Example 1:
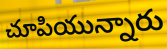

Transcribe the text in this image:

చూపియున్నారు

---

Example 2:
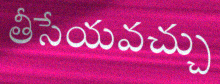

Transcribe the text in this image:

తీసేయవచ్చు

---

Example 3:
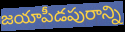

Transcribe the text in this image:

జయాపీడపురాన్ని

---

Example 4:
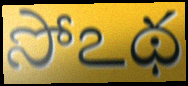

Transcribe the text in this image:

సోఽథ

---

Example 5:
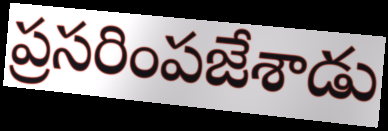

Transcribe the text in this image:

ప్రసరింపజేశాడు